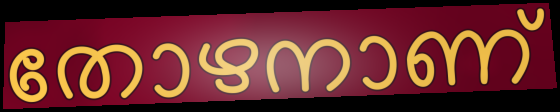
തോഴനാണ്